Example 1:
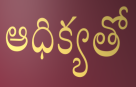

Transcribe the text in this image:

ఆధిక్యతో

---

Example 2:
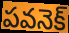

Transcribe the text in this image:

పవనెక్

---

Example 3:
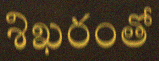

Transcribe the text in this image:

శిఖరంతో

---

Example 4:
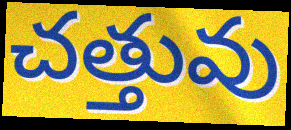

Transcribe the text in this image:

చత్తువు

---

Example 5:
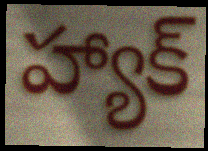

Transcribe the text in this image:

హ్యాక్